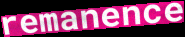
remanence